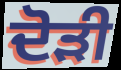
ਦੋੜੀ